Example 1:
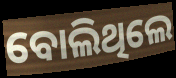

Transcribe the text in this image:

ବୋଲିଥିଲେ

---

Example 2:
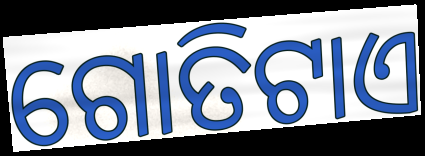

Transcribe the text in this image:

ଗୋତିଟାଏ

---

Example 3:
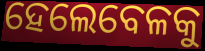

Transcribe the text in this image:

ହେଲେବେଳକୁ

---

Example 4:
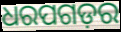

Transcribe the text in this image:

ଧରପଗଡ଼ର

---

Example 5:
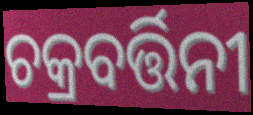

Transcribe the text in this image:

ଚକ୍ରବର୍ତ୍ତିନୀ